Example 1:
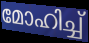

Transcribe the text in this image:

മോഹിച്ച്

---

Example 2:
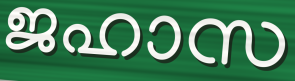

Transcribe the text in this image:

ജഹാസ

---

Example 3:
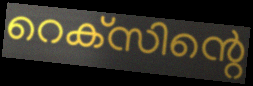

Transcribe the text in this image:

റെക്‌സിന്റെ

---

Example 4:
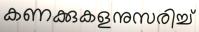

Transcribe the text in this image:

കണക്കുകളനുസരിച്ച്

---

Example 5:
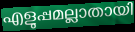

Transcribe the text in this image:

എളുപ്പമല്ലാതായി